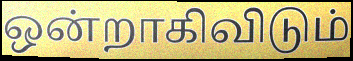
ஒன்றாகிவிடும்